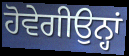
ਹੋਵੇਗੀਉਨ੍ਹਾਂ